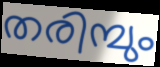
തരിമ്പും